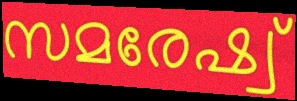
സമരേഷ്വ്